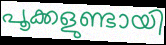
പൂക്കളുണ്ടായി